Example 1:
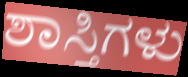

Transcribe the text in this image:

ಶಾಸ್ತಿಗಳು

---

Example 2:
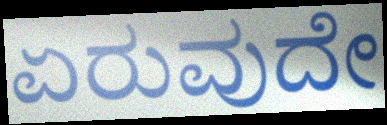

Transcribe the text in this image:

ಏರುವುದೇ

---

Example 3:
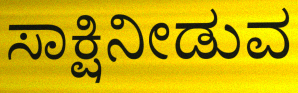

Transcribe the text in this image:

ಸಾಕ್ಷಿನೀಡುವ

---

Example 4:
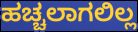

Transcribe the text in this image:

ಹಚ್ಚಲಾಗಲಿಲ್ಲ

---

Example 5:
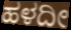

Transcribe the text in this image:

ಹಳದೀ